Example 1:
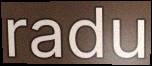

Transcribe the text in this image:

radu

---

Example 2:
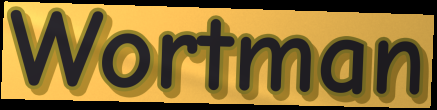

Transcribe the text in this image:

Wortman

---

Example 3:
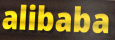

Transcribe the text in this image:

alibaba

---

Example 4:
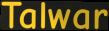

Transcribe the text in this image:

Talwar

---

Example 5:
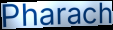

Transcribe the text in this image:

Pharach